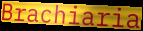
Brachiaria